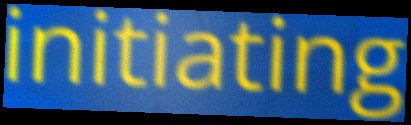
initiating